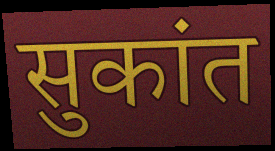
सुकांत